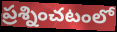
ప్రశ్నించటంలో